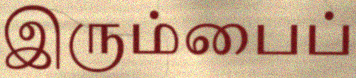
இரும்பைப்